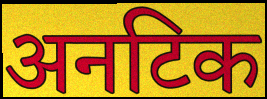
अनटिक